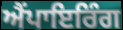
ਐਂਪਾਇਰਿੰਗ